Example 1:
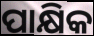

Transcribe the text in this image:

ପାକ୍ଷିକ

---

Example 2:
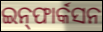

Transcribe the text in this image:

ଇନ୍‌ଫାର୍କସନ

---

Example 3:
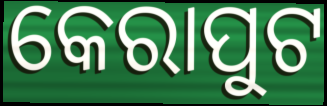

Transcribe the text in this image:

କେରାପୁଟ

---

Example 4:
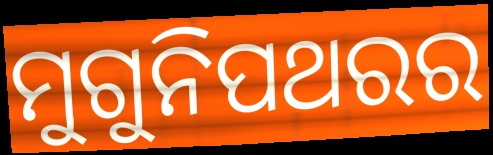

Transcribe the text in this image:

ମୁଗୁନିପଥରର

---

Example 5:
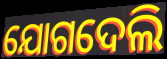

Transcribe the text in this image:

ଯୋଗଦେଲି